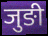
जुङी